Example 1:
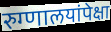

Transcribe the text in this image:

रुग्णालयांपेक्षा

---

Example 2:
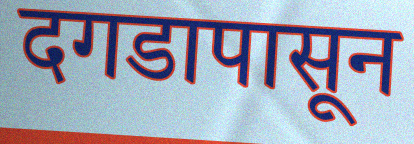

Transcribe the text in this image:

दगडापासून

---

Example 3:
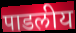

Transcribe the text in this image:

पाडलीय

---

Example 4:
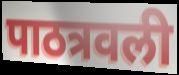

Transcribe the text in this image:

पाठत्रवली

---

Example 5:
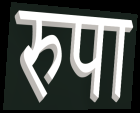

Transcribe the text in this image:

रुपा